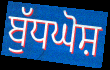
ਬੁੱਧਘੋਸ਼